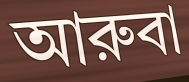
আরুবা